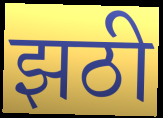
झठी